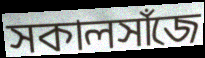
সকালসাঁজে